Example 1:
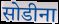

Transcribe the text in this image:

सोडीना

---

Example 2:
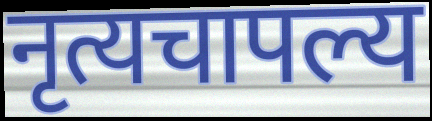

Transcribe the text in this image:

नृत्यचापल्य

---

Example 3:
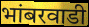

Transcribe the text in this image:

भांबरवाडी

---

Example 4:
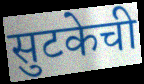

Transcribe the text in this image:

सुटकेची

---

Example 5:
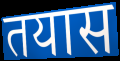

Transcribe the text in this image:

तयास